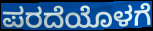
ಪರದೆಯೊಳಗೆ